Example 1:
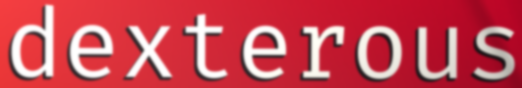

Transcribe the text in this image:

dexterous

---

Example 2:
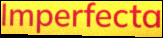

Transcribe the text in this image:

Imperfecta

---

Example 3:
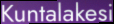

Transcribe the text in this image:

Kuntalakesi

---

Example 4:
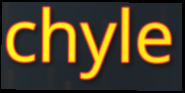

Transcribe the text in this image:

chyle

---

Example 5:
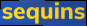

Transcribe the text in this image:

sequins